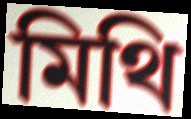
মিথি